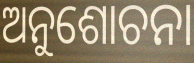
ଅନୁଶୋଚନା